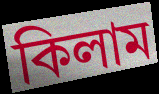
কিলাম